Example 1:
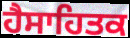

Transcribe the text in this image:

ਹੈਸਾਹਿਤਕ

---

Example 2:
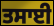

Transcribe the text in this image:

ਤਸਾਈ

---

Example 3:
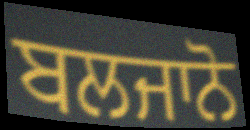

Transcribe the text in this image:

ਬਲਜਾਨੋ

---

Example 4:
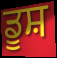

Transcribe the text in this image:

ਡੂਸ਼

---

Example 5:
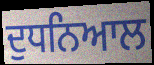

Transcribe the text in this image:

ਦੁਧਨਿਆਲ